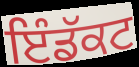
ਇੰਡੱਕਟ